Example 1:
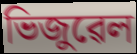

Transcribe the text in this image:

ভিজুৱেল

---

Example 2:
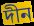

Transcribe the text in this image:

দীন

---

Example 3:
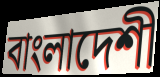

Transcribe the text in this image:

বাংলাদেশী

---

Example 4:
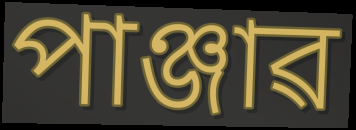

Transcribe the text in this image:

পাঞ্জাৱ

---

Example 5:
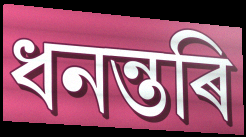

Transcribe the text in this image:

ধনন্তৰি